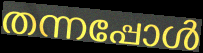
തന്നപ്പോൾ